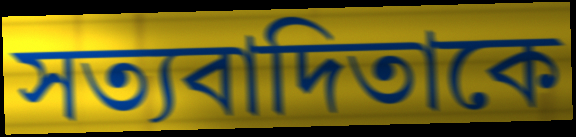
সত্যবাদিতাকে